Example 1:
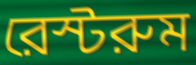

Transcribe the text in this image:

রেস্টরুম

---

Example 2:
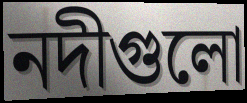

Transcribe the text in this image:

নদীগুলো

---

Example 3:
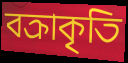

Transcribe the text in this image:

বক্রাকৃতি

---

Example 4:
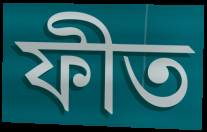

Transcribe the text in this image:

ফীত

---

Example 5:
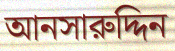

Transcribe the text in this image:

আনসারুদ্দিন